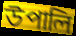
উপালি